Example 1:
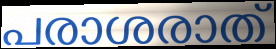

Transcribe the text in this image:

പരാശരാത്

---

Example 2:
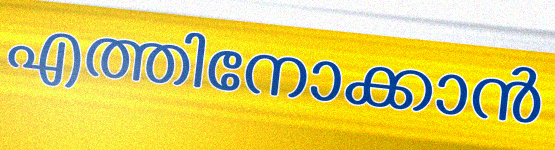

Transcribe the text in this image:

എത്തിനോക്കാൻ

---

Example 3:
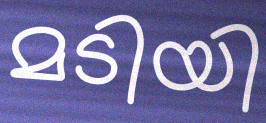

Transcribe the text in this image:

മടിയി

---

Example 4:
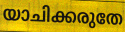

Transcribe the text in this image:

യാചിക്കരുതേ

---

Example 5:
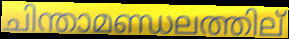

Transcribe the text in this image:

ചിന്താമണ്ഡലത്തില്